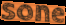
sone